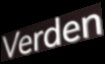
Verden